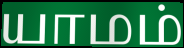
யாமம்